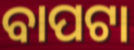
ବାପଟା